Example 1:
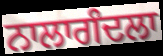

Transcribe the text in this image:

ਨਾਲਾਗੰਦਲਾ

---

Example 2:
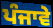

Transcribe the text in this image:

ਪੰਜਾਵੇ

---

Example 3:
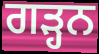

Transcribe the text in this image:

ਗੜ੍ਹਨ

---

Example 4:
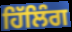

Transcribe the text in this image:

ਹਿੱਲਿੰਗ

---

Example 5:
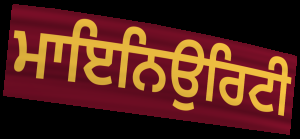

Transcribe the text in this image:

ਮਾਇਨਿਉਰਿਟੀ